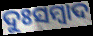
ଦୁଃସମ୍ୱାଦ